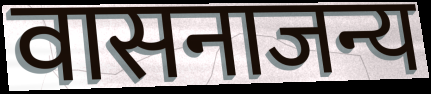
वासनाजन्य